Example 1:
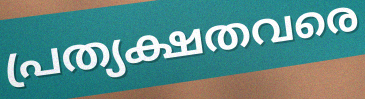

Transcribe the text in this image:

പ്രത്യക്ഷതവരെ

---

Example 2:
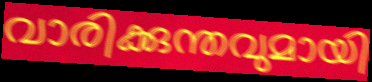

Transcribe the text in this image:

വാരിക്കുന്തവുമായി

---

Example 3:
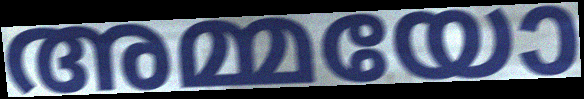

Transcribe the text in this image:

അമ്മയോ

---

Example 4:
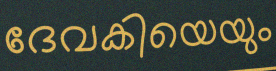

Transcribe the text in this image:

ദേവകിയെയും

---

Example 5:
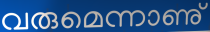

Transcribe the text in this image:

വരുമെന്നാണു്